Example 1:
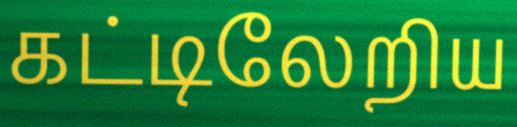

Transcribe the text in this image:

கட்டிலேறிய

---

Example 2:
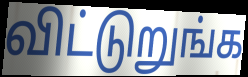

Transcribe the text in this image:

விட்டுறுங்க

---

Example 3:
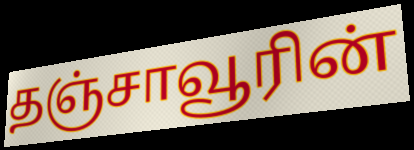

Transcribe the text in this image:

தஞ்சாவூரின்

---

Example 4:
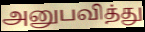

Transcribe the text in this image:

அனுபவித்து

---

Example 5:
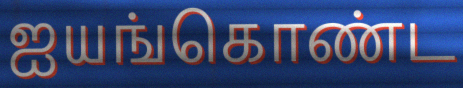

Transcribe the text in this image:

ஐயங்கொண்ட